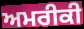
ਅਮਰੀਕੀ